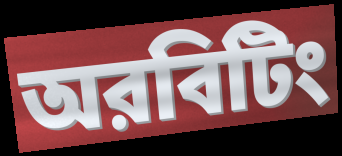
অরবিটিং